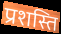
प्रशस्ति